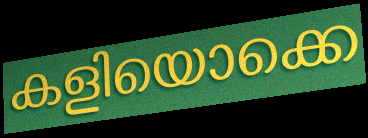
കളിയൊക്കെ